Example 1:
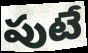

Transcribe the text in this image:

పుటే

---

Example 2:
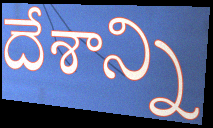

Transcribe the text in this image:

దేశాన్ని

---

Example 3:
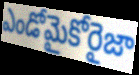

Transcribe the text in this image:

ఎండోమైకోరైజా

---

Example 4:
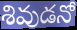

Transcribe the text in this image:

శివుడనో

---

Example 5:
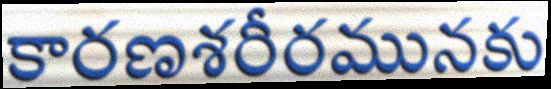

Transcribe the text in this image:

కారణశరీరమునకు